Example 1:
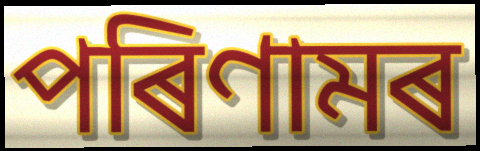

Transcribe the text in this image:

পৰিণামৰ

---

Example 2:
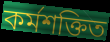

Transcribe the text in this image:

কৰ্মশক্তিত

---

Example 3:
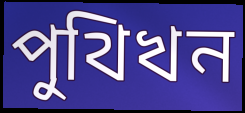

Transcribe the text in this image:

পুথিখন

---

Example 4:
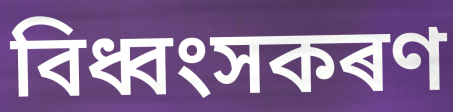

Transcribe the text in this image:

বিধ্বংসকৰণ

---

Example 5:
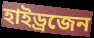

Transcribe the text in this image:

হাইড্ৰজেন